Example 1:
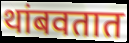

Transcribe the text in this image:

थांबवतात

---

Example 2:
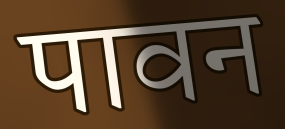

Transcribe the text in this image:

पावन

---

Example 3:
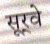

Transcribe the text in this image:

सूर्वे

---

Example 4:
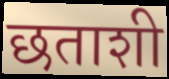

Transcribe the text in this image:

छताशी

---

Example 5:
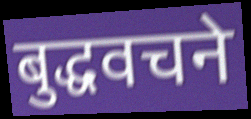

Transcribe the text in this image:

बुद्धवचने